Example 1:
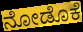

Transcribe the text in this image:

ನೋಡೊಕೆ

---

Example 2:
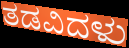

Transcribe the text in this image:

ತಡವಿದಳು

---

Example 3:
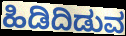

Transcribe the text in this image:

ಹಿಡಿದಿಡುವ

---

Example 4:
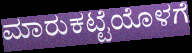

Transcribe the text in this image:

ಮಾರುಕಟ್ಟೆಯೊಳಗೆ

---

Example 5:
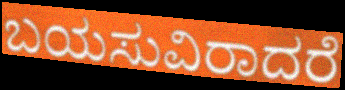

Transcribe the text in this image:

ಬಯಸುವಿರಾದರೆ